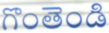
గొంతెండి